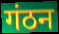
गंठन